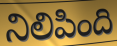
నిలిపింది